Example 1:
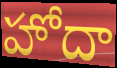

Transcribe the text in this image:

హోదా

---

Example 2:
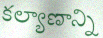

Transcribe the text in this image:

కల్యాణాన్ని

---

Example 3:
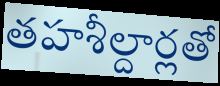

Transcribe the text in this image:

తహశీల్దార్లతో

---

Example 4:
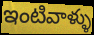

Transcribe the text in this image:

ఇంటివాళ్ళు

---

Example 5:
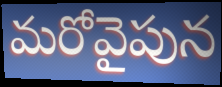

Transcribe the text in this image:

మరోవైపున